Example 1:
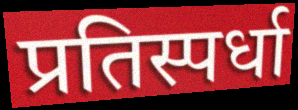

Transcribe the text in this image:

प्रतिस्पर्धा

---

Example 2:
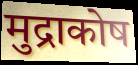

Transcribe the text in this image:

मुद्राकोष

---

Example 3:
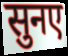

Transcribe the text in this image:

सुनए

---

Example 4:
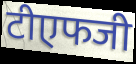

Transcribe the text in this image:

टीएफजी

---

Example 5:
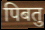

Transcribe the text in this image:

पिबतु